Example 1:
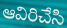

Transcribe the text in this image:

ఆవిరిచేసి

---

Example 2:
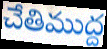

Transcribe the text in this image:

చేతిముద్ద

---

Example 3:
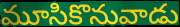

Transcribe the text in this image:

మూసికొనువాడు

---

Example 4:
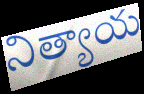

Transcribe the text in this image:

నిత్యాయ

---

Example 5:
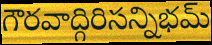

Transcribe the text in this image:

గౌరవాద్గిరిసన్నిభమ్